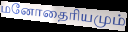
மனோதைரியமும்